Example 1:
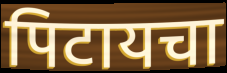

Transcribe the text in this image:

पिटायचा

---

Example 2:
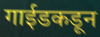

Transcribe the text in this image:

गाईडकडून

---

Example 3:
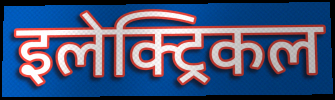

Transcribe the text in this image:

इलेक्ट्रिकल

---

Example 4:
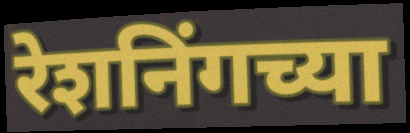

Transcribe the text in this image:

रेशनिंगच्या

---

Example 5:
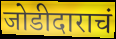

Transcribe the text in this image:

जोडीदाराचं